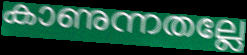
കാണുന്നതല്ലേ